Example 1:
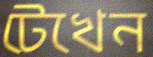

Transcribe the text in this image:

টেখেন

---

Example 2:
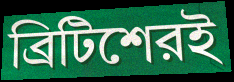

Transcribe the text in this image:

ব্রিটিশেরই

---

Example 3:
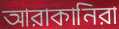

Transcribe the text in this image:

আরাকানিরা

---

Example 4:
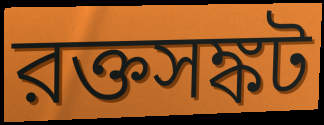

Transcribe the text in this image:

রক্তসঙ্কট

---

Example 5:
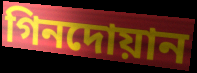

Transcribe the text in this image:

গিনদোয়ান